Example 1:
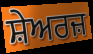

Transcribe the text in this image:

ਸ਼ੇਅਰਜ਼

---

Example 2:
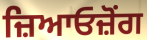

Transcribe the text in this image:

ਜ਼ਿਆਓਜ਼ੋਂਗ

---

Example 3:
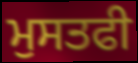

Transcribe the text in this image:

ਮੁਸਤਫੀ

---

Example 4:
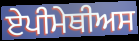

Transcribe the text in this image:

ਏਪੀਮੇਥੀਅਸ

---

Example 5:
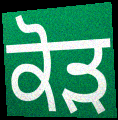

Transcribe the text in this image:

ਕੋੜ